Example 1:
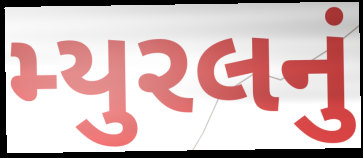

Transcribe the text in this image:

મ્યુરલનું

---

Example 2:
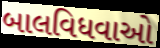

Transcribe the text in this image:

બાલવિધવાઓ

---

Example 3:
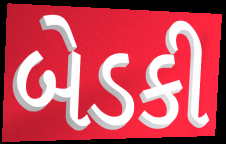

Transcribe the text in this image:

બેડકી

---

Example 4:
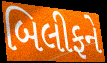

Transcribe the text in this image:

બિલીફને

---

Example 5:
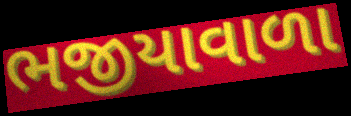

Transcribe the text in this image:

ભજીયાવાળા